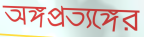
অঙ্গপ্রত্যঙ্গের